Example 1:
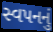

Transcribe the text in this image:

સ્વપનનું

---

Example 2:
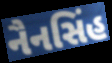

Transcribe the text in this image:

નૈનસિંહ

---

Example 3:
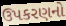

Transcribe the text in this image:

ઉપકરણનો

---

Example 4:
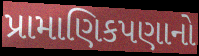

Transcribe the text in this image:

પ્રામાણિકપણાનો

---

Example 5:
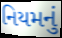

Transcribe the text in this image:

નિયમનું